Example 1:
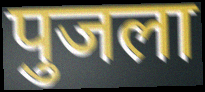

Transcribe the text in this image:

पुजला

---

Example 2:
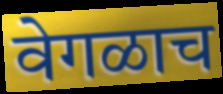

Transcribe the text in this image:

वेगळाच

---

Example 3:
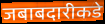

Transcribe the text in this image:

जबाबदारीकडे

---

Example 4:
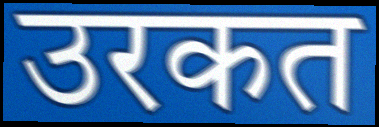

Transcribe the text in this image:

उरकत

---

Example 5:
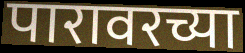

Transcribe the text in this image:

पारावरच्या